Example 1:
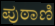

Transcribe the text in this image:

ಪುಠಾಣಿ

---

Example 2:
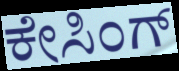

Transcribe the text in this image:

ಕೇಸಿಂಗ್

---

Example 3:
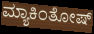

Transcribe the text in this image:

ಮ್ಯಾಕಿಂತೋಷ್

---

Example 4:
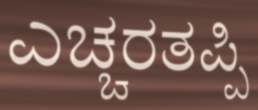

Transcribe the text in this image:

ಎಚ್ಚರತಪ್ಪಿ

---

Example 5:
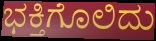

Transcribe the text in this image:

ಭಕ್ತಿಗೊಲಿದು